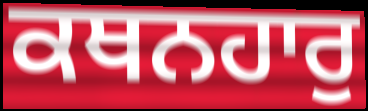
ਕਥਨਹਾਰੁ